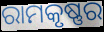
ରାମକୃଷ୍ଣର